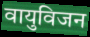
वायुविजन